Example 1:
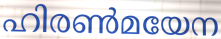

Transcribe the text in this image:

ഹിരൺമയേന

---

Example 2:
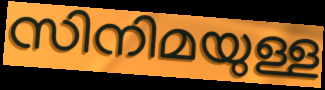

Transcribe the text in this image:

സിനിമയുള്ള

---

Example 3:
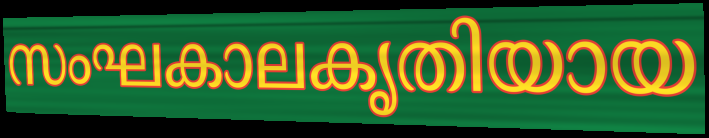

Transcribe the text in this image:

സംഘകാലകൃതിയായ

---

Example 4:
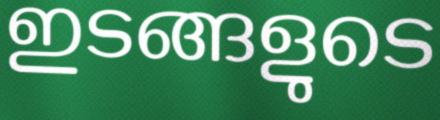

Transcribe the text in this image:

ഇടങ്ങളുടെ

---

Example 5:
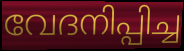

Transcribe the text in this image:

വേദനിപ്പിച്ച